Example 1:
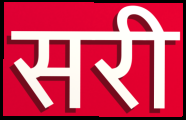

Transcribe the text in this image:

सरी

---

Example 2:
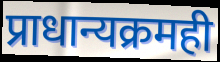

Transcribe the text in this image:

प्राधान्यक्रमही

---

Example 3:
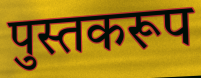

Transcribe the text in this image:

पुस्तकरूप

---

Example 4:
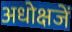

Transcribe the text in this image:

अधोक्षजें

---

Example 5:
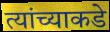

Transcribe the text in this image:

त्यांच्याकडे